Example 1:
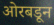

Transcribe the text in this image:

ओरबडून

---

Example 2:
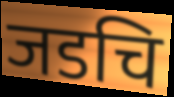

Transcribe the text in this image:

जडचि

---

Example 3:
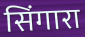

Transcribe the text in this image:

सिंगारा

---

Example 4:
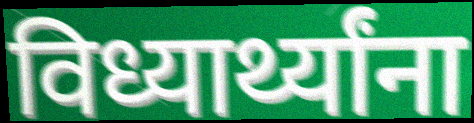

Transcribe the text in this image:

विध्यार्थ्यांना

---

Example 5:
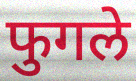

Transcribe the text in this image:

फुगले